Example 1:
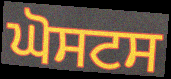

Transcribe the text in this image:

ਘੋਸਟਸ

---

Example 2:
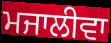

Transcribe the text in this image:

ਮਜਾਲੀਵਾ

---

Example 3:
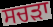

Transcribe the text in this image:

ਸਚੜਾ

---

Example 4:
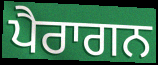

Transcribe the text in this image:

ਪੈਰਾਗਨ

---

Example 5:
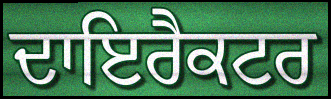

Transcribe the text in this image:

ਦਾਇਰੈਕਟਰ